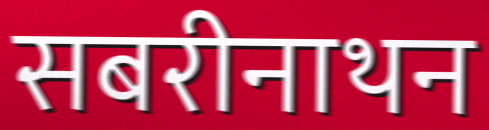
सबरीनाथन